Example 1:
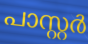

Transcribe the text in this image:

പാസ്റ്റർ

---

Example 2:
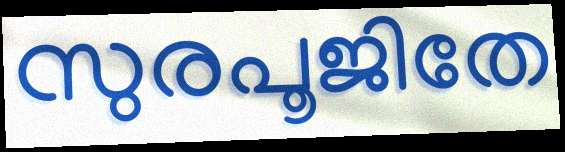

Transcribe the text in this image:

സുരപൂജിതേ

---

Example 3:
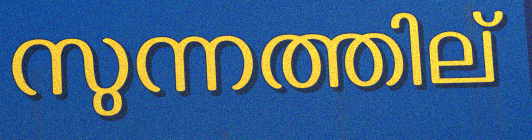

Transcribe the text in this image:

സുന്നത്തില്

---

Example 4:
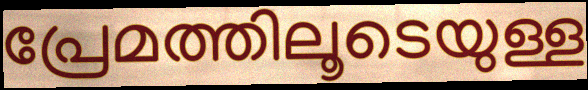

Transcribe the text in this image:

പ്രേമത്തിലൂടെയുള്ള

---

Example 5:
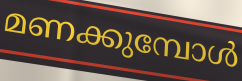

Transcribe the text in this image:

മണക്കുമ്പോൾ